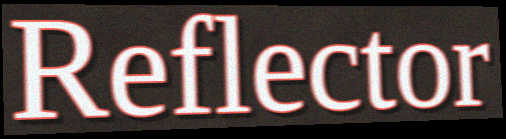
Reflector